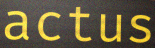
actus